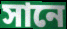
সানে